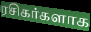
ரசிகர்களாக